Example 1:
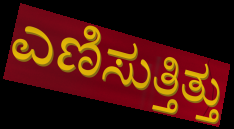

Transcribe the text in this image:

ಎಣಿಸುತ್ತಿತ್ತು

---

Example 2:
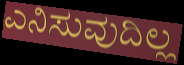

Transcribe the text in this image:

ಎನಿಸುವುದಿಲ್ಲ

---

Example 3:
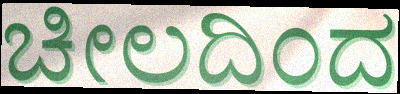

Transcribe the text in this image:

ಚೀಲದಿಂದ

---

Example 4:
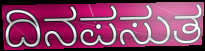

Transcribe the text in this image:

ದಿನಪಸುತ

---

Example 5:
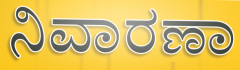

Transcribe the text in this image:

ನಿವಾರಣಾ